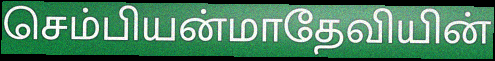
செம்பியன்மாதேவியின்